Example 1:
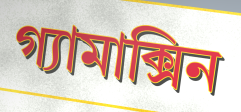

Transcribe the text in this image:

গ্যামাক্সিন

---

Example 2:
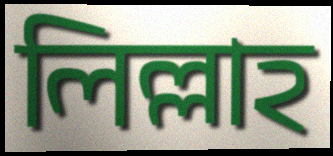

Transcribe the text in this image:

লিল্লাহ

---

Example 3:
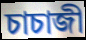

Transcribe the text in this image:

চাচাজী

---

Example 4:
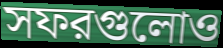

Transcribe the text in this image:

সফরগুলোও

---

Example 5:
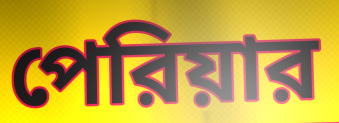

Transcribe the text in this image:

পেরিয়ার